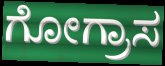
ಗೋಗ್ರಾಸ